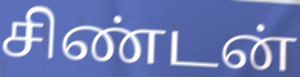
சிண்டன்